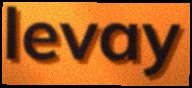
levay